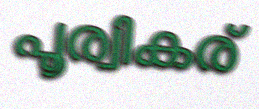
പൂര്വികര്